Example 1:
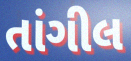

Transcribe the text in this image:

તાંગીલ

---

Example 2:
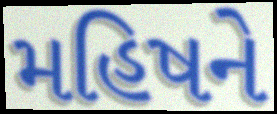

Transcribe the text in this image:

મહિષને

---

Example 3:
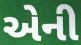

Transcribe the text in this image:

એની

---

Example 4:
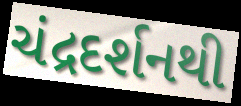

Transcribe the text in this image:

ચંદ્રદર્શનથી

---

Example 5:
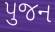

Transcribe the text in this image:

પુજન